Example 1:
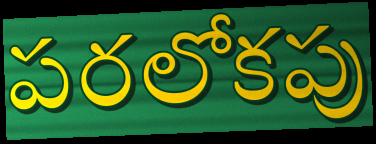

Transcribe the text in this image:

పరలోకపు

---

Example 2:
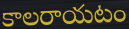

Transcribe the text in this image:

కాలరాయటం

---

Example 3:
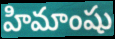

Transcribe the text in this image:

హిమాంషు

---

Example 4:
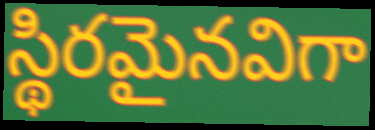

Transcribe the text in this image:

స్థిరమైనవిగా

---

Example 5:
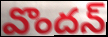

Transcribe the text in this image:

వొందన్